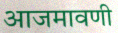
आजमावणी